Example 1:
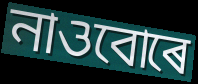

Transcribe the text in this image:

নাওবোৰে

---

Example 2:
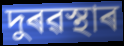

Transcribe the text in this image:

দুৰৱস্থাৰ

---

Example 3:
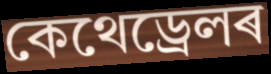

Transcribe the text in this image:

কেথেড্ৰেলৰ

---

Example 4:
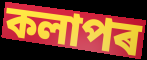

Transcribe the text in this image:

কলাপৰ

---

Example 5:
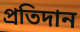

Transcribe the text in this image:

প্ৰতিদান